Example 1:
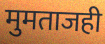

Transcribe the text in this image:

मुमताजही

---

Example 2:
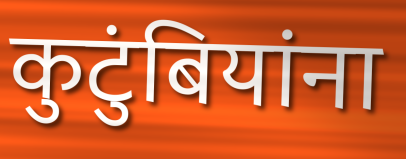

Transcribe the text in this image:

कुटुंबियांना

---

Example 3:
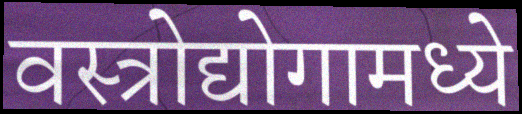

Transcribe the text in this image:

वस्त्रोद्योगामध्ये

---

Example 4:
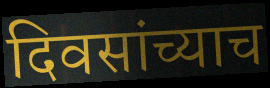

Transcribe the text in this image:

दिवसांच्याच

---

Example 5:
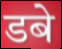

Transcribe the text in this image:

डबे